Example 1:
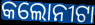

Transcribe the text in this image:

କଲୋନୀଟା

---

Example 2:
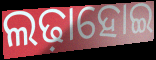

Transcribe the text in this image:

ଲଢ଼ାହୋଇ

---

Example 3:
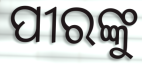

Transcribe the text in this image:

ପୀରଙ୍କୁ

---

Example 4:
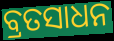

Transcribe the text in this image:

ବ୍ରତସାଧନ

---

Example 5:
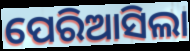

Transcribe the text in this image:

ପେରିଆସିଲା